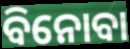
ବିନୋବା